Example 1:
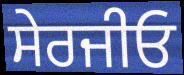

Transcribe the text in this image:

ਸੇਰਜੀਓ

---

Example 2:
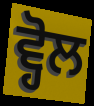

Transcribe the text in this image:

ਵ੍ਹੋਲ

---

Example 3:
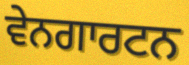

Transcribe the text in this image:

ਵੇਨਗਾਰਟਨ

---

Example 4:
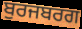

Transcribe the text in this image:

ਬੁਰਜਬਰਗ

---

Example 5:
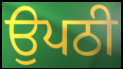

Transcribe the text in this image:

ਉਪਠੀ